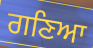
ਗਣਿਆ